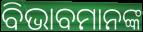
ବିଭାବମାନଙ୍କ